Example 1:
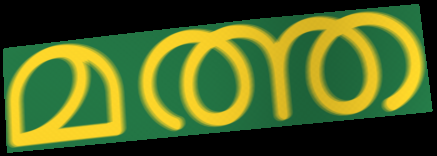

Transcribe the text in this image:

മത്ത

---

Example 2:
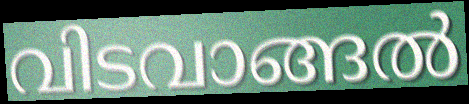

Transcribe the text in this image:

വിടവാങ്ങൽ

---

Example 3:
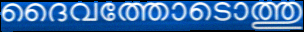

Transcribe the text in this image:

ദൈവത്തോടൊത്തു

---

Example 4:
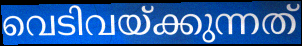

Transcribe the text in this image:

വെടിവയ്ക്കുന്നത്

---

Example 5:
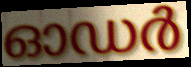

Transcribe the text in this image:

ഓഡർ